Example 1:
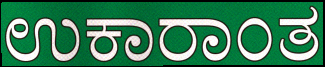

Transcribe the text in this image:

ಉಕಾರಾಂತ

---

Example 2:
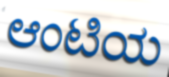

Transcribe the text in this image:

ಆಂಟಿಯ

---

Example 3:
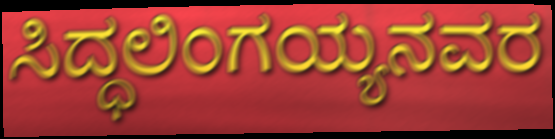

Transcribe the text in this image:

ಸಿದ್ಧಲಿಂಗಯ್ಯನವರ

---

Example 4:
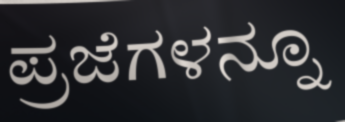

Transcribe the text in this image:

ಪ್ರಜೆಗಳನ್ನೂ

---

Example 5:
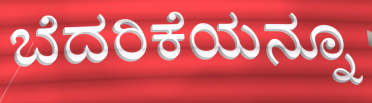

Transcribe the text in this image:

ಬೆದರಿಕೆಯನ್ನೂ